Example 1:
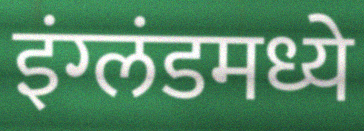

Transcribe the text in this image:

इंग्लंडमध्ये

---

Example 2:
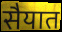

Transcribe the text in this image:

सैयात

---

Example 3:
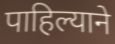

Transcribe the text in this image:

पाहिल्याने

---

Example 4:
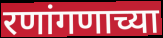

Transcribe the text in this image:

रणांगणाच्या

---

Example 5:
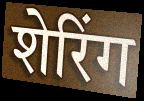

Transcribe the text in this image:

शेरिंग